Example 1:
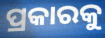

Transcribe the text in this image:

ପ୍ରକାରକୁ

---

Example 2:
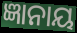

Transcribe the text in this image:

ଜ୍ଞାନାୟ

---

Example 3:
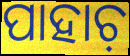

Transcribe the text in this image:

ପାହାଚ଼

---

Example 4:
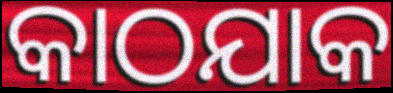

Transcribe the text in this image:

କାଠଯାକ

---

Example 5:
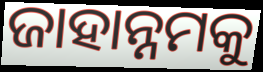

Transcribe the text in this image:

ଜାହାନ୍ନମକୁ